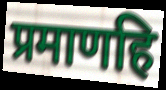
प्रमाणहि